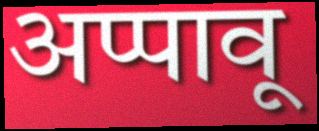
अप्पावू